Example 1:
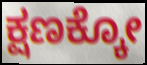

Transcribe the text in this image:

ಕ್ಷಣಕ್ಕೋ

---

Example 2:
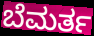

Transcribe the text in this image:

ಬೆಮರ್ತ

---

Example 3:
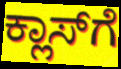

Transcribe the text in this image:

ಕ್ಲಾಸ್‍ಗೆ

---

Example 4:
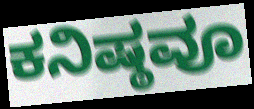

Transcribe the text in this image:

ಕನಿಷ್ಠವೂ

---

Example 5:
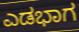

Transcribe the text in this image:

ಎಡಭಾಗ